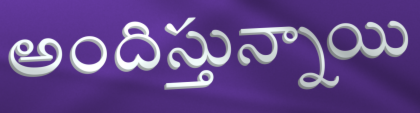
అందిస్తున్నాయి